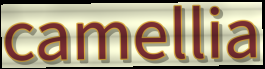
camellia